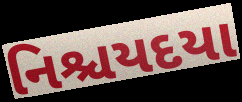
નિશ્ચયદયા